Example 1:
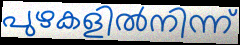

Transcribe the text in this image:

പുഴകളിൽനിന്ന്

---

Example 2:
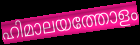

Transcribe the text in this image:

ഹിമാലയത്തോളം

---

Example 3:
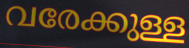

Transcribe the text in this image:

വരേക്കുള്ള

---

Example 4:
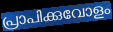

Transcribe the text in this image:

പ്രാപിക്കുവോളം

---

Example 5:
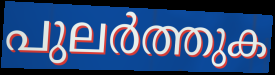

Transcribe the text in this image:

പുലർത്തുക